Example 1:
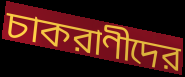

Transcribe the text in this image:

চাকরাণীদের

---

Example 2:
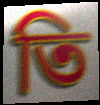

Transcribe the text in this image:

তি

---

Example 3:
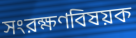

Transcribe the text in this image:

সংরক্ষণবিষয়ক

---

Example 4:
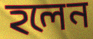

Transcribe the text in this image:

হলেন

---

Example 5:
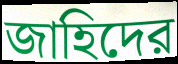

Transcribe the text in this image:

জাহিদের